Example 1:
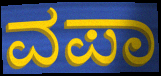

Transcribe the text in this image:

ವಪಾ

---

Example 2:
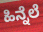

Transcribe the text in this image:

ಹಿನ್ನೆಲೆ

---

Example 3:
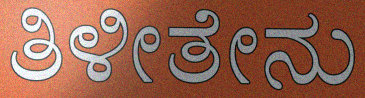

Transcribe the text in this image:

ತಿಳೀತೇನು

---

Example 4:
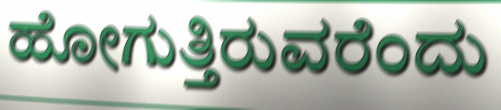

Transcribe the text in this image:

ಹೋಗುತ್ತಿರುವರೆಂದು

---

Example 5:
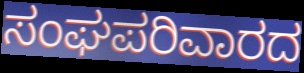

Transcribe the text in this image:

ಸಂಘಪರಿವಾರದ